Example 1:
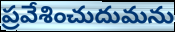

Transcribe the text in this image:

ప్రవేశించుదుమను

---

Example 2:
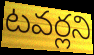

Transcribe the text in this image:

టవర్లని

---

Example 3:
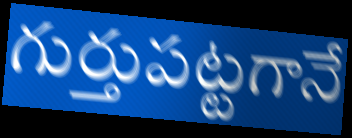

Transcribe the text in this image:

గుర్తుపట్టగానే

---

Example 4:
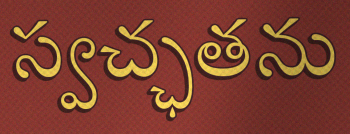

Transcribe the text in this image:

స్వచ్ఛతను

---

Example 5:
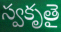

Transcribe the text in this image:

స్వకృతై